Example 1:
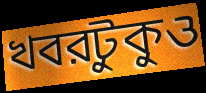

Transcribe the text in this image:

খবরটুকুও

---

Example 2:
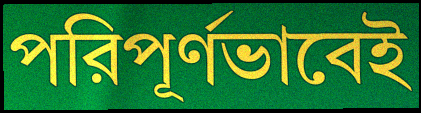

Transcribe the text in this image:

পরিপূর্ণভাবেই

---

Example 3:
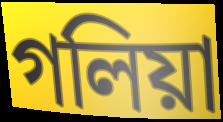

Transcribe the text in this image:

গলিয়া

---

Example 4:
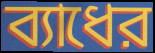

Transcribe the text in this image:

ব্যাধের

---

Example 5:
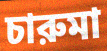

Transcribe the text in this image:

চারুমা